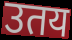
उतय